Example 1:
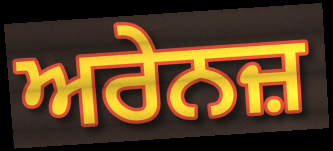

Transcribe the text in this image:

ਅਰੇਨਜ਼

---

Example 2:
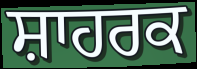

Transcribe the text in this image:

ਸ਼ਾਹਰਕ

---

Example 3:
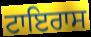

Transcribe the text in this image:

ਟਾਇਰਾਸ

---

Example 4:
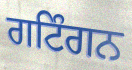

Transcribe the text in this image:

ਗਟਿੰਗਨ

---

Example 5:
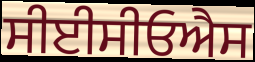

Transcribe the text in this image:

ਸੀਈਸੀਓਐਸ